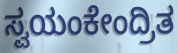
ಸ್ವಯಂಕೇಂದ್ರಿತ